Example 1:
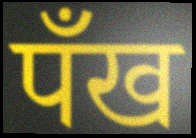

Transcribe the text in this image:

पँख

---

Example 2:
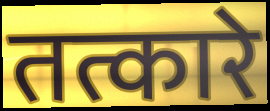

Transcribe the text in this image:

तत्कारे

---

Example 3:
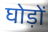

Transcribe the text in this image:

घोड़ों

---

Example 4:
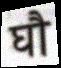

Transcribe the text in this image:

घौ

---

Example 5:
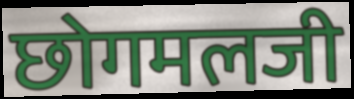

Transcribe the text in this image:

छोगमलजी